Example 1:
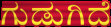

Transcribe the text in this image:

ಗುಡುಗಿದೆ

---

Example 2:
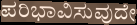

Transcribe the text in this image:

ಪರಿಭಾವಿಸುವುದೇ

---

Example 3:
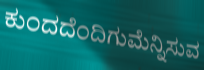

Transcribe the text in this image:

ಕುಂದದೆಂದಿಗುಮೆನ್ನಿಸುವ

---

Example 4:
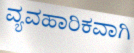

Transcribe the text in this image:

ವ್ಯವಹಾರಿಕವಾಗಿ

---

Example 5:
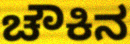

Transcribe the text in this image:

ಚೌಕಿನ